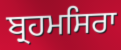
ਬ੍ਰਹਮਸਿਰਾ